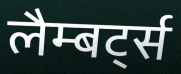
लैम्बर्ट्स